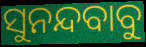
ସୁନନ୍ଦବାବୁ